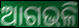
ଆଗଭଳି